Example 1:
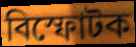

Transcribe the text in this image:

বিস্ফোটক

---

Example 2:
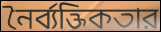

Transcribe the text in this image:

নৈর্ব্যক্তিকতার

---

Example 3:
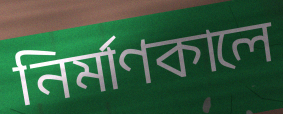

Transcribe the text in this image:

নির্মাণকালে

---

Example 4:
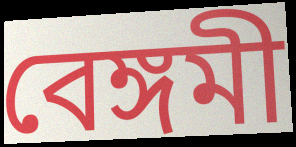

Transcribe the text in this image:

বেঙ্গমী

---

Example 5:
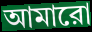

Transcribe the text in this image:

আমারো